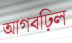
আগবঢ়িল